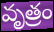
వృత్రం